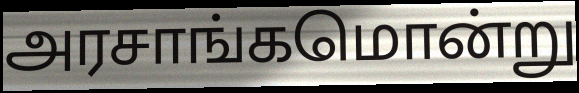
அரசாங்கமொன்று